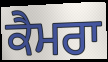
ਕੈਮਰਾ